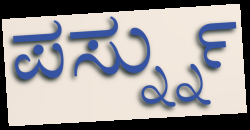
ಪರ್ಸ್ನ್ನು